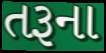
તરૂના